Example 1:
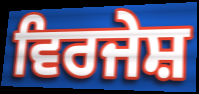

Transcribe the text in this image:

ਵਿਰਜੇਸ਼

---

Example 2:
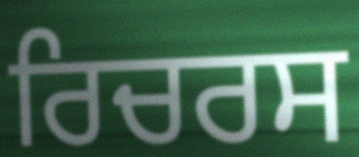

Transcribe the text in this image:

ਰਿਚਰਸ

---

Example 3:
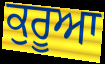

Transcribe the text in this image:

ਕੁਰੂਆ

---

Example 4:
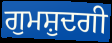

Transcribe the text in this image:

ਗੁਮਸ਼ੁਦਗੀ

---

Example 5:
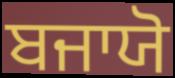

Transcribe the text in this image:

ਬਜਾਯੋ